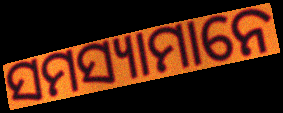
ସମସ୍ୟାମାନେ